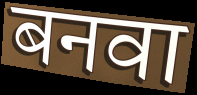
बनवा